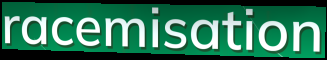
racemisation